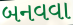
બનવવા